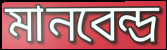
মানবেন্দ্র